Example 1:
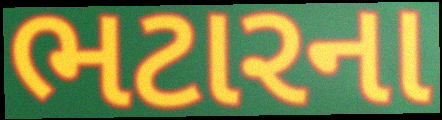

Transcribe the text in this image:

ભટારના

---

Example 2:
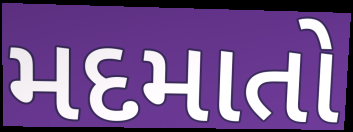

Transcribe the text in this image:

મદમાતો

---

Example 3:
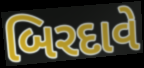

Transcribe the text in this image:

બિરદાવે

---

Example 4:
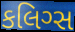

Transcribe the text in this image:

કલિગ્સ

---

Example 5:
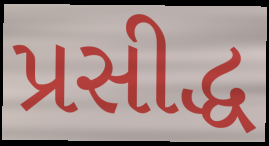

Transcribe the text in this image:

પ્રસીદ્ધ